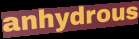
anhydrous